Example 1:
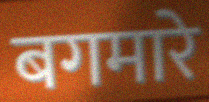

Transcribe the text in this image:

बगमारे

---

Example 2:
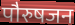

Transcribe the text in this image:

पौरुषजन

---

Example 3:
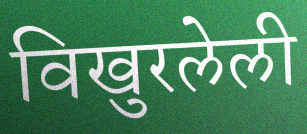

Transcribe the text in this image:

विखुरलेली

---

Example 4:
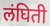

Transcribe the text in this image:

लंघिती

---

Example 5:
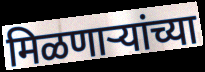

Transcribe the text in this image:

मिळणाऱ्यांच्या